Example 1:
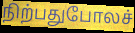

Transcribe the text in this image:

நிற்பதுபோலச்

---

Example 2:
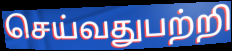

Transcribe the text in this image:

செய்வதுபற்றி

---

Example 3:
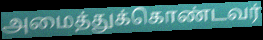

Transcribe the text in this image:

அமைத்துக்கொண்டவர்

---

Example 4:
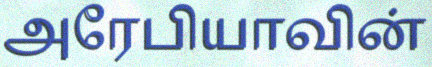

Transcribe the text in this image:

அரேபியாவின்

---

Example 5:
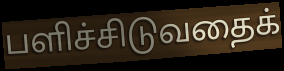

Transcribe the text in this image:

பளிச்சிடுவதைக்